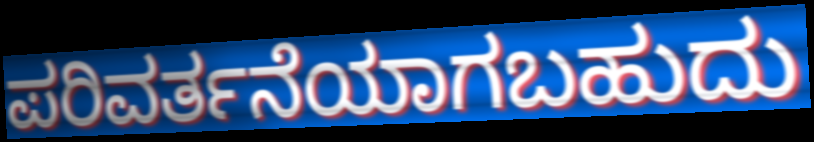
ಪರಿವರ್ತನೆಯಾಗಬಹುದು